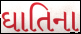
ઘાતિના